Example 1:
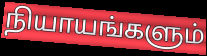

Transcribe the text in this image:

நியாயங்களும்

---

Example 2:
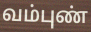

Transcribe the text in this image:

வம்புண்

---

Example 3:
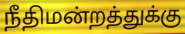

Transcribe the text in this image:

நீதிமன்றத்துக்கு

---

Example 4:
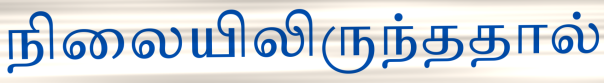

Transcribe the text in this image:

நிலையிலிருந்ததால்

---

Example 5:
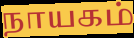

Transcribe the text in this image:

நாயகம்